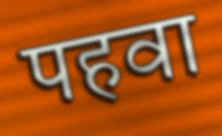
पहवा